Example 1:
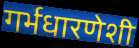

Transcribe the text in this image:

गर्भधारणेशी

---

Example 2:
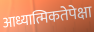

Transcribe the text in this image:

आध्यात्मिकतेपेक्षा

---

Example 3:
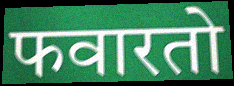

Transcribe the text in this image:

फवारतो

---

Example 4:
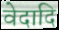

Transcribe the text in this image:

वेदादि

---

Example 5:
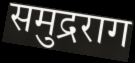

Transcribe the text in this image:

समुद्रराग